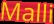
Malli